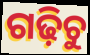
ଗଢ଼ିଚୁ